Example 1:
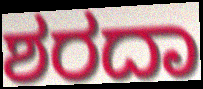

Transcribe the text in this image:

ಶರದಾ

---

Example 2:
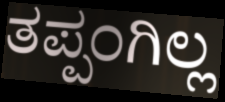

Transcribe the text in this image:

ತಪ್ಪಂಗಿಲ್ಲ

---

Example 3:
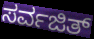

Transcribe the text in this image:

ಸರ್ವಜಿತ್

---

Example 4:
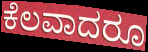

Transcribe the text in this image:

ಕೆಲವಾದರೂ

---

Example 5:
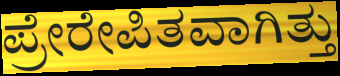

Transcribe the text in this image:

ಪ್ರೇರೇಪಿತವಾಗಿತ್ತು